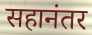
सहानंतर